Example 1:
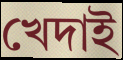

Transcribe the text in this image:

খেদাই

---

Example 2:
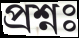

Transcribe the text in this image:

প্রশ্নঃ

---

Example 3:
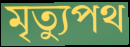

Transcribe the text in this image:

মৃত্যুপথ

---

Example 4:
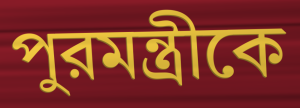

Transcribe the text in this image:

পুরমন্ত্রীকে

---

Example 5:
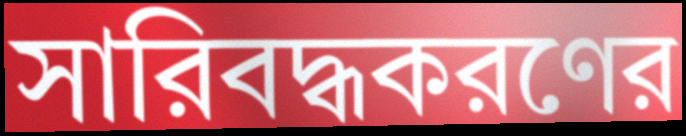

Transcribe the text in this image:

সারিবদ্ধকরণের